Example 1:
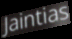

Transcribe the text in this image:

Jaintias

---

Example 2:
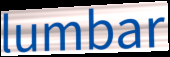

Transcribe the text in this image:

lumbar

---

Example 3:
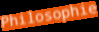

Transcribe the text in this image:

Philosophie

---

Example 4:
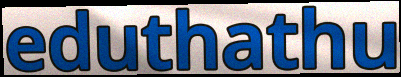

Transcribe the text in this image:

eduthathu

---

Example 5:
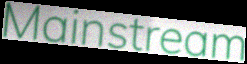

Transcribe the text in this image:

Mainstream